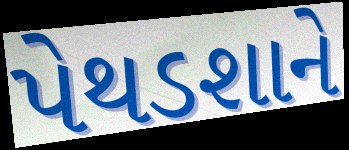
પેથડશાને